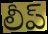
లీప్